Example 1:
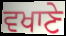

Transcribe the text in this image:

ਵਖਾਣੇ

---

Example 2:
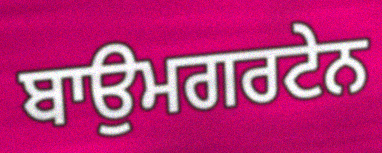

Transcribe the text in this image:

ਬਾਉਮਗਰਟੇਨ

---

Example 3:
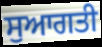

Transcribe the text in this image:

ਸੁਆਗਤੀ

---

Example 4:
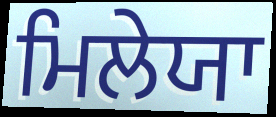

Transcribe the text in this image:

ਮਿਲੇਯਾ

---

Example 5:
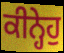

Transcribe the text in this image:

ਕੀਨ੍ਹੇਹੁ